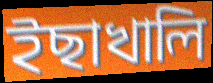
ইছাখালি